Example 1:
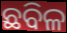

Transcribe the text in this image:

ଛବିଳ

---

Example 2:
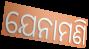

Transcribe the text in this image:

ଯେନାମଣି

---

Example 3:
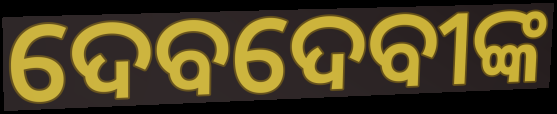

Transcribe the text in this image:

ଦେବଦେବୀଙ୍କ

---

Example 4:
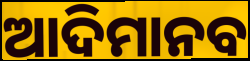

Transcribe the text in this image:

ଆଦିମାନବ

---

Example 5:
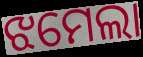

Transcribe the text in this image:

ଝମେଲା